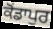
ਕੋਂਡਾਪੁਰ